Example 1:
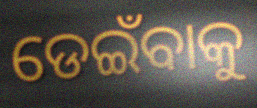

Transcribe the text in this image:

ଡେଇଁବାକୁ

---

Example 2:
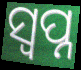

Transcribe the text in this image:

ସ୍ବପ୍ନ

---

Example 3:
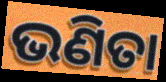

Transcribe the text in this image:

ଭଣିତା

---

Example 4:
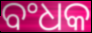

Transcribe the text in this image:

ବଂଧକ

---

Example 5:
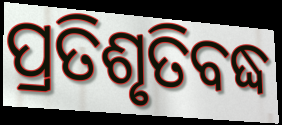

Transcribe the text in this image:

ପ୍ରତିଶୃତିବଦ୍ଧ